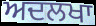
ਅਦਲਖਾ